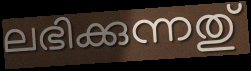
ലഭിക്കുന്നതു്